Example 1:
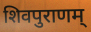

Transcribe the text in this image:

शिवपुराणम्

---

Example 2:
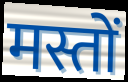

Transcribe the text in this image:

मस्तों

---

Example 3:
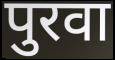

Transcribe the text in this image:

पुरवा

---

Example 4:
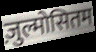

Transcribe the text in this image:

ज़ुल्मोसितम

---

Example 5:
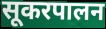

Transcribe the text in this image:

सूकरपालन